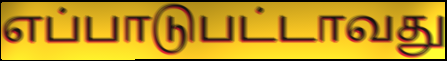
எப்பாடுபட்டாவது